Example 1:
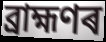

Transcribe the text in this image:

ব্ৰাহ্মণৰ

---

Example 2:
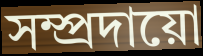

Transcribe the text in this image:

সম্প্ৰদায়ো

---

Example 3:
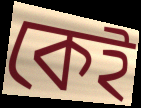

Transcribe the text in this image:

কেই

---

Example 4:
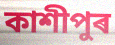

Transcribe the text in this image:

কাশীপুৰ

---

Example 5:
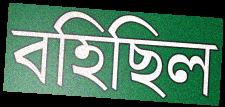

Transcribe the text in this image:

বহিছিল